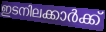
ഇടനിലക്കാർക്ക്